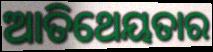
ଆତିଥେୟତାର